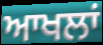
ਆਖਲਾਂ